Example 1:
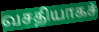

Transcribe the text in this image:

வசதியாகச்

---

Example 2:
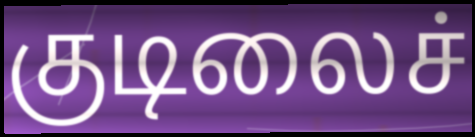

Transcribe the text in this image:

குடிலைச்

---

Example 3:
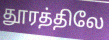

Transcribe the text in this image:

தூரத்திலே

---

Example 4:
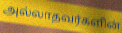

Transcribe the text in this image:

அல்லாதவர்களின்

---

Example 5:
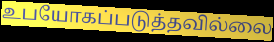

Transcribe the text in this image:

உபயோகப்படுத்தவில்லை